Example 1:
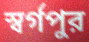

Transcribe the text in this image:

স্বর্গপুর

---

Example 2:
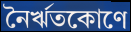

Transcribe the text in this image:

নৈর্ঋতকোণে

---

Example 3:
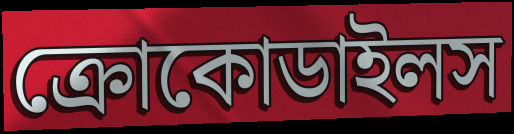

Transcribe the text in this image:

ক্রোকোডাইলস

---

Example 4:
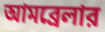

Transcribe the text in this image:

আমব্রেলার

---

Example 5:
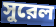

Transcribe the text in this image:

সুরেল